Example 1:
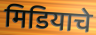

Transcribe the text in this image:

मिडियाचे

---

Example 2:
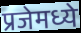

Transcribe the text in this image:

प्रजेमध्ये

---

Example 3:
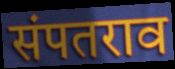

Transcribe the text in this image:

संपतराव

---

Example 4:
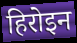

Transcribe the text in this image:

हिरोइन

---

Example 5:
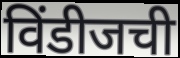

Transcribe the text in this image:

विंडीजची